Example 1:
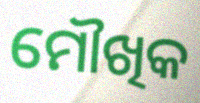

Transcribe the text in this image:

ମୌଖିକ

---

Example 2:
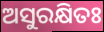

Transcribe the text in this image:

ଅସୁରକ୍ଷିତଃ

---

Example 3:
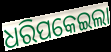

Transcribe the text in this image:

ଧରିପକେଇଲା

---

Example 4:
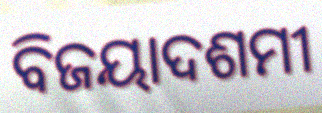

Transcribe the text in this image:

ବିଜୟାଦଶମୀ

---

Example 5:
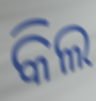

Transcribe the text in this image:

କିଲ